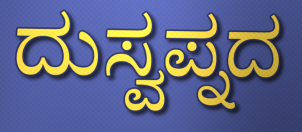
ದುಸ್ವಪ್ನದ